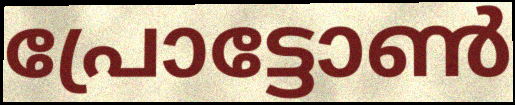
പ്രോട്ടോൺ